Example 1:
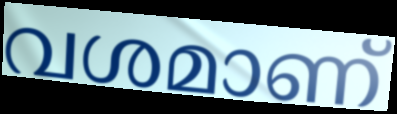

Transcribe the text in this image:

വശമാണ്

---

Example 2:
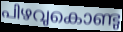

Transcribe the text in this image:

പിഴവുകൊണ്ടു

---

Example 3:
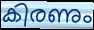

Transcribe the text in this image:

കിരണും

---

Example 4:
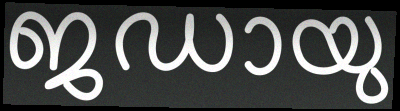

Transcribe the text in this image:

ജഡായു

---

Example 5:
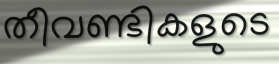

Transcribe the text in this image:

തീവണ്ടികളുടെ